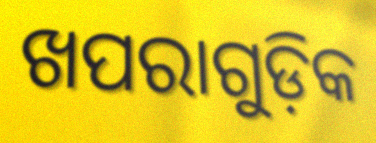
ଖପରାଗୁଡ଼ିକ